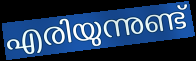
എരിയുന്നുണ്ട്